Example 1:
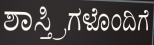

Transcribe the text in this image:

ಶಾಸ್ತ್ರಿಗಳೊಂದಿಗೆ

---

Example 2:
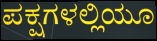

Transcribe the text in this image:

ಪಕ್ಷಗಳಲ್ಲಿಯೂ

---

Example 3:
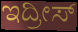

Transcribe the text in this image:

ಇದ್ರೀಸ್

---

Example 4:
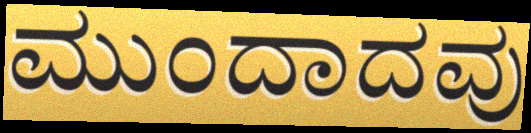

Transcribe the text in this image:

ಮುಂದಾದವು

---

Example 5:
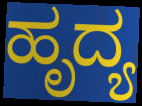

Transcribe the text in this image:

ಹೃದ್ಯ